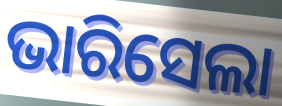
ଭାରିସେଲା